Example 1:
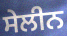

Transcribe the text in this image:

ਸੇਲੀਨ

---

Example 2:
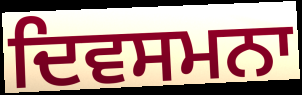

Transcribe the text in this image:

ਦਿਵਸਮਨਾ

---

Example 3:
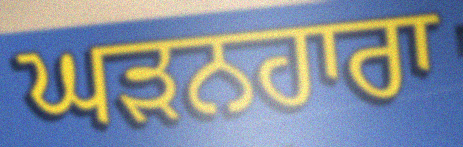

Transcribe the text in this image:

ਘੜਨਹਾਰਾ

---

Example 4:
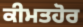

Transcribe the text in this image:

ਕੀਮਤਹੋਰ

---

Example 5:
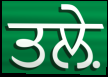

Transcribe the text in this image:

ਤਲ਼ੇ